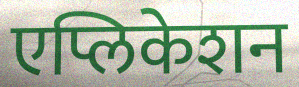
एप्लिकेशन